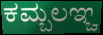
ಕಮ್ಬಲಞ್ಚ